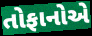
તોફાનોએ